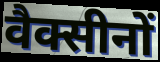
वैक्सीनों